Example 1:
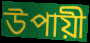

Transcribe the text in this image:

উপায়ী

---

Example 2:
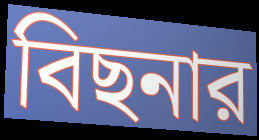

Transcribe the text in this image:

বিছনার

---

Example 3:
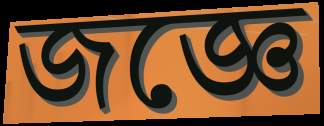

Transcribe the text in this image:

জজ্ঞে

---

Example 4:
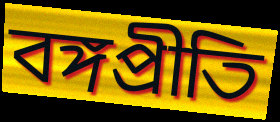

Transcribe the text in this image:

বঙ্গপ্রীতি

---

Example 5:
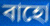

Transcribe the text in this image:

বাহো